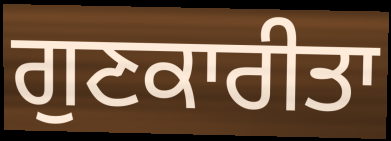
ਗੁਣਕਾਰੀਤਾ